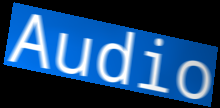
Audio